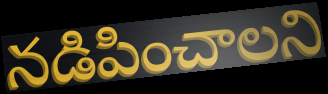
నడిపించాలని